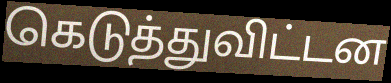
கெடுத்துவிட்டன